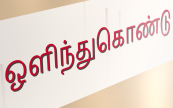
ஒளிந்துகொண்டு